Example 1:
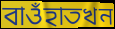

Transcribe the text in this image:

বাওঁহাতখন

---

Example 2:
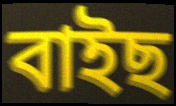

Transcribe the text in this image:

বাইছ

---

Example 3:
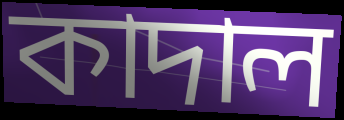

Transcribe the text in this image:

কাদাল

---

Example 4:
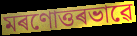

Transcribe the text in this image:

মৰণোত্তৰভাৱে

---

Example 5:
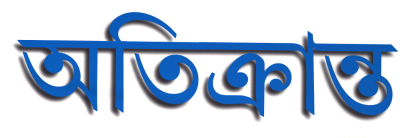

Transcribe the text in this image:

অতিক্ৰান্ত